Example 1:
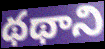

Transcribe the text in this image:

థథాని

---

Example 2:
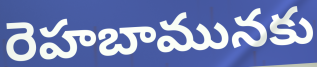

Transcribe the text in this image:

రెహబామునకు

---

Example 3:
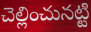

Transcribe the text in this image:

చెల్లించునట్టి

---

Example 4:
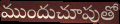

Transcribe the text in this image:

ముందుచూపుతో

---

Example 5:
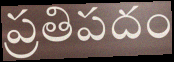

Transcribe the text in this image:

ప్రతిపదం